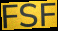
FSF